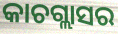
କାଚଗ୍ଲାସର